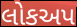
લોકઅપ